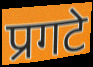
प्रगटे